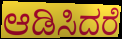
ಆಡಿಸಿದರೆ